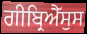
ਗੀਬ੍ਰਿਐੱਸੁਸ